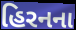
હિરનના